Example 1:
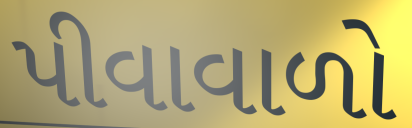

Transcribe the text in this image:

પીવાવાળો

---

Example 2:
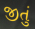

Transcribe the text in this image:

જીતું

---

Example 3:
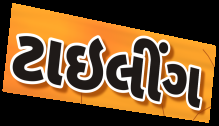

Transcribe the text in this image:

ટાઇલીંગ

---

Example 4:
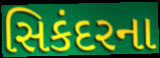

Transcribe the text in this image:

સિકંદરના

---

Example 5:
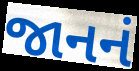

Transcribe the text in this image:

જાનનં